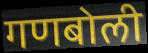
गणबोली